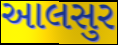
આલસુર